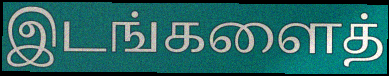
இடங்களைத்